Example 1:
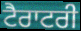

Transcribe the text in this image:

ਟੈਰਾਟਰੀ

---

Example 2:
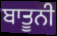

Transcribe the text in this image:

ਬਾਤੂਨੀ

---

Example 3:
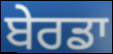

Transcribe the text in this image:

ਬੇਰਡਾ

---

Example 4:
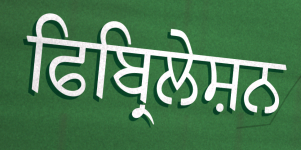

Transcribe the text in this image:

ਫਿਬ੍ਰਿਲੇਸ਼ਨ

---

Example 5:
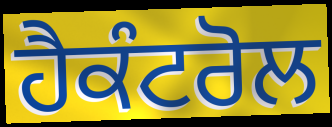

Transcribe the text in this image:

ਹੈਕੰਟਰੋਲ